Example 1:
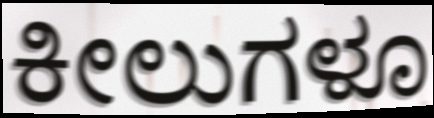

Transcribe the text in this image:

ಕೀಲುಗಳೂ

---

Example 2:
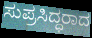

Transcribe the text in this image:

ಸುಪ್ರಸಿದ್ಧರಾದ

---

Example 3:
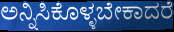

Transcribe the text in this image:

ಅನ್ನಿಸಿಕೊಳ್ಳಬೇಕಾದರೆ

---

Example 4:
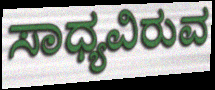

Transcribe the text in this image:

ಸಾಧ್ಯವಿರುವ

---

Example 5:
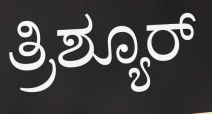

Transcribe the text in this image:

ತ್ರಿಶ್ಯೂರ್